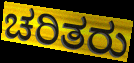
ಚರಿತರು